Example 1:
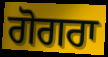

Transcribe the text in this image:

ਗੋਗਰਾ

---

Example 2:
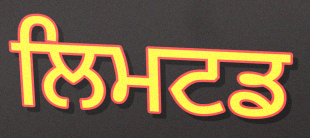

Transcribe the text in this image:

ਲਿਮਟਡ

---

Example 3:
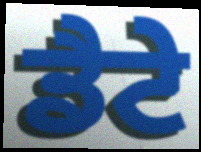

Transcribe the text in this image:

ਡੈਟੇ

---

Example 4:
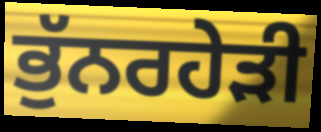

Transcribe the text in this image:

ਭੁੱਨਰਹੇੜੀ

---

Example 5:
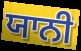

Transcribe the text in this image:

ਯਾਨੀ